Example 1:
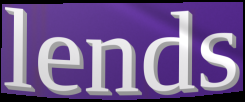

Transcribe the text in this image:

lends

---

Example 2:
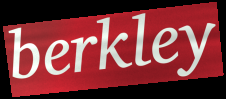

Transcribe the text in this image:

berkley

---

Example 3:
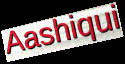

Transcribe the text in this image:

Aashiqui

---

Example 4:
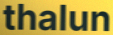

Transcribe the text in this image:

thalun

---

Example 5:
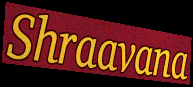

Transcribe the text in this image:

Shraavana